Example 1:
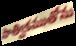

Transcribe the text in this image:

సాత్వికముతోను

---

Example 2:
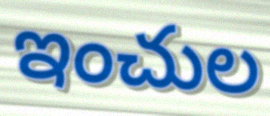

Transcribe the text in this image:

ఇంచుల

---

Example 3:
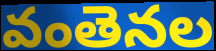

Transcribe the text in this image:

వంతెనల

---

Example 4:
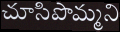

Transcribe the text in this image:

చూసిపొమ్మని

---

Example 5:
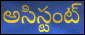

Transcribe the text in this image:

అసిస్టంట్